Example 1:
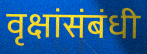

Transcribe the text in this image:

वृक्षांसंबंधी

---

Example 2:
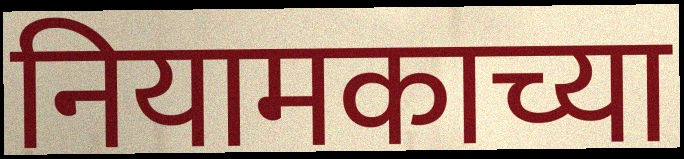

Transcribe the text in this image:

नियामकाच्या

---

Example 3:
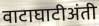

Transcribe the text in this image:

वाटाघाटीअंती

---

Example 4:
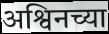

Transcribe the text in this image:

अश्विनच्या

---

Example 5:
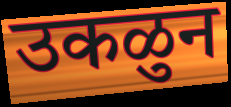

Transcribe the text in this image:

उकळुन